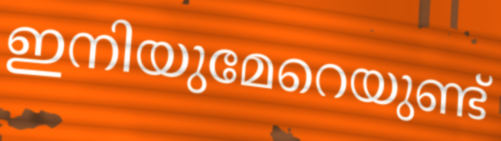
ഇനിയുമേറെയുണ്ട്